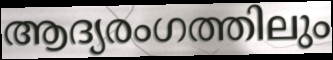
ആദ്യരംഗത്തിലും